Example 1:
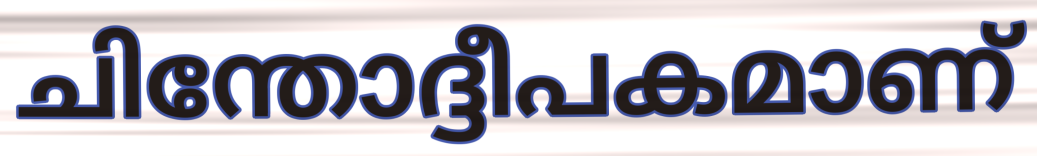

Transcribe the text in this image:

ചിന്തോദ്ദീപകമാണ്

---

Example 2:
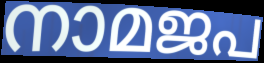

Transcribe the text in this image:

നാമജപ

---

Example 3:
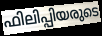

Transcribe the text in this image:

ഫിലിപ്പിയരുടെ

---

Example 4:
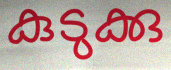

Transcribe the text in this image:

കുടുക്കു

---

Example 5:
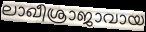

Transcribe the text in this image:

ലാഖീശ്രാജാവായ